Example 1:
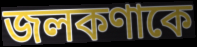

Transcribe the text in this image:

জলকণাকে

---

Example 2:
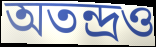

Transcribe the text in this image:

অতন্দ্রও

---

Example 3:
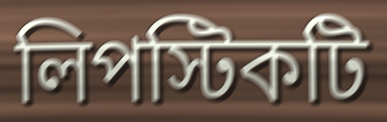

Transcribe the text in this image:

লিপস্টিকটি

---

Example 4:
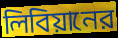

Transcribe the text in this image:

লিবিয়ানের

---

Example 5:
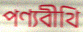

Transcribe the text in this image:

পণ্যবীথি